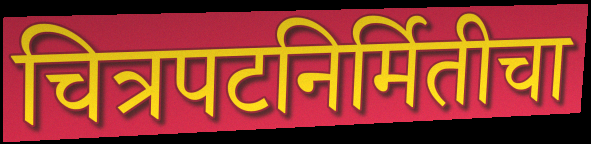
चित्रपटनिर्मितीचा